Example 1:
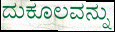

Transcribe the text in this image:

ದುಕೂಲವನ್ನು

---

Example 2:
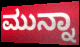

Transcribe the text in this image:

ಮುನ್ನಾ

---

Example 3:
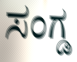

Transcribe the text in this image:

ಸಂಗ್ಡ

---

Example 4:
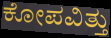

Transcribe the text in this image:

ಕೋಪವಿತ್ತು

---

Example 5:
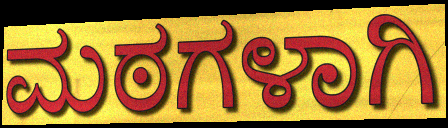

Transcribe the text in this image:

ಮಠಗಳಾಗಿ